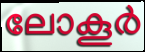
ലോകൂർ